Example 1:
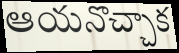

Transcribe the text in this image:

ఆయనొచ్చాక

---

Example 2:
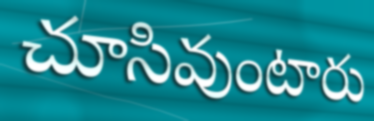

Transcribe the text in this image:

చూసివుంటారు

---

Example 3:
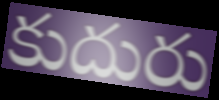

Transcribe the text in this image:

కుదురు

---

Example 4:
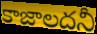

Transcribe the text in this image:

కాజాలదనీ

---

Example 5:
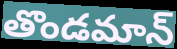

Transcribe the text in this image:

తొండమాన్